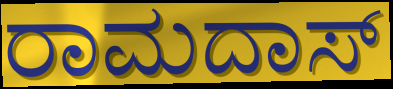
ರಾಮದಾಸ್